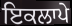
ਇਕਲਾਪੇ